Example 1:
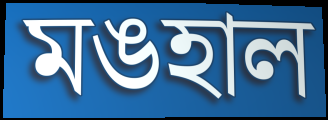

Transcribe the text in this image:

মঙহাল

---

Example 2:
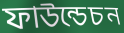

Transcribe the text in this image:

ফাউন্ডেচন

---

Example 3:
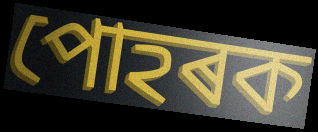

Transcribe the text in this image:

পোহৰক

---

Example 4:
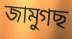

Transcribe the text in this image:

জামুগছ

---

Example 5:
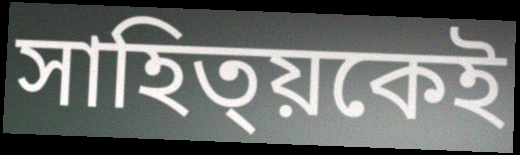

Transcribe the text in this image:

সাহিত্য়কেই